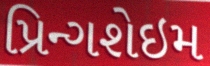
પ્રિન્ગશેઇમ